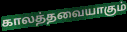
காலத்தவையாகும்